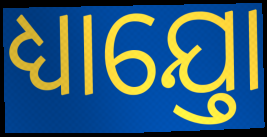
ଧ୍ୟାଯ୍ତୋ